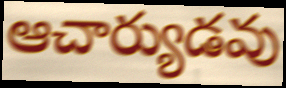
ఆచార్యుడవు